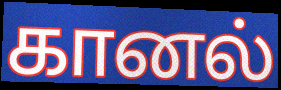
கானல்